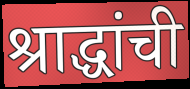
श्राद्धांची